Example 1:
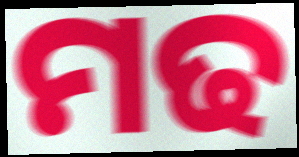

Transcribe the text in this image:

ମଢ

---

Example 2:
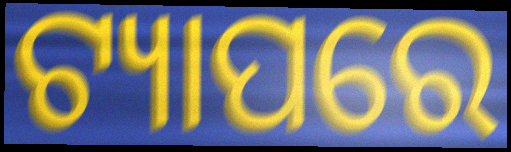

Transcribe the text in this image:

ଟ୍ୟାପରେ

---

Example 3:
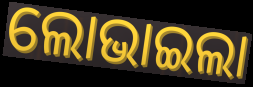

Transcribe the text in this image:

ଲୋଭାଇଲା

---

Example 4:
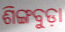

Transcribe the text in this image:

ଶିଙ୍ଗବୁଡ଼ା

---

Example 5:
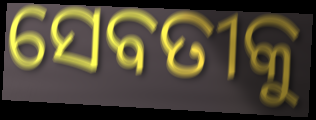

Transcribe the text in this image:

ସେବତୀକୁ